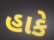
હાકે